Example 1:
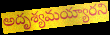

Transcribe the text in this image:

అదృశ్యమయ్యారని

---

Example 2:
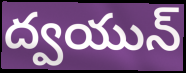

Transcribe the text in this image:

ద్వయున్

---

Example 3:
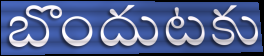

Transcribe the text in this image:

బొందుటకు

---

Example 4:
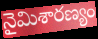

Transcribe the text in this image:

నైమిశారణ్యం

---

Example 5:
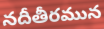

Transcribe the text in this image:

నదీతీరమున